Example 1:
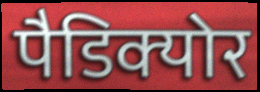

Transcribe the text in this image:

पैडिक्योर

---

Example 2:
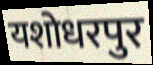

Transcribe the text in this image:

यशोधरपुर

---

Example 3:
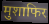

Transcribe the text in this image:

मुशाफिर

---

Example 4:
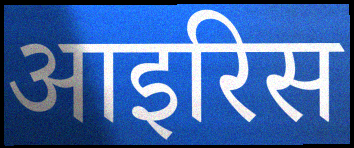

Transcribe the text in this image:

आइरिस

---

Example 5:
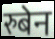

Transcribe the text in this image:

रुबेन